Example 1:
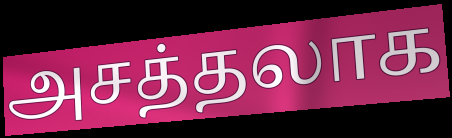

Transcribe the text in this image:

அசத்தலாக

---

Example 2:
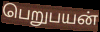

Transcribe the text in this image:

பெறுபயன்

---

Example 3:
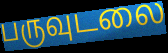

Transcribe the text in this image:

பருவுடலை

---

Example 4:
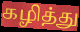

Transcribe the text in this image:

கழித்து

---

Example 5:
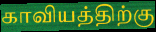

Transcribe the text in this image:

காவியத்திற்கு